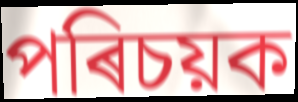
পৰিচয়ক